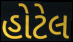
હોટેલ